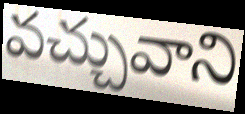
వచ్చువాని